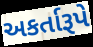
અકર્તારૂપે